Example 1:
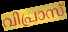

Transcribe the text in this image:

വിപ്രാസ്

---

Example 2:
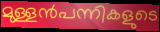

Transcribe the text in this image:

മുള്ളൻപന്നികളുടെ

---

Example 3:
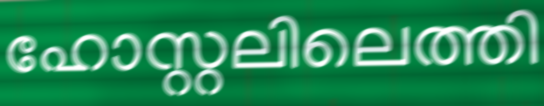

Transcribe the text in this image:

ഹോസ്റ്റലിലെത്തി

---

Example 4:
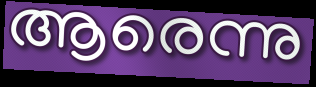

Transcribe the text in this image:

ആരെന്നു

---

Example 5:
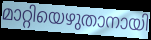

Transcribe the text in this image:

മാറ്റിയെഴുതാനായി